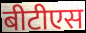
बीटीएस